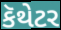
કૅથેટર